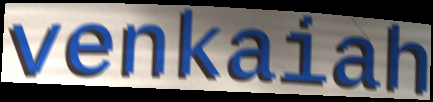
venkaiah